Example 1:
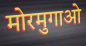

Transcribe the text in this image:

मोरमुगाओ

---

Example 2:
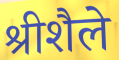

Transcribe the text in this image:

श्रीशैले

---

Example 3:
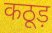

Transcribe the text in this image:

कठूड़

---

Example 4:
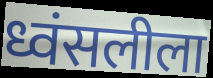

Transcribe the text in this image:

ध्वंसलीला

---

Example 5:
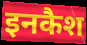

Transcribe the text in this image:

इनकैश